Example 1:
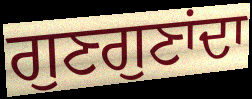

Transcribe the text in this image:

ਗੁਣਗੁਣਾਂਦਾ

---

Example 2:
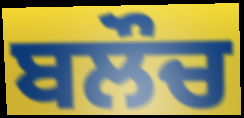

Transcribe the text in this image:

ਬਲੌਚ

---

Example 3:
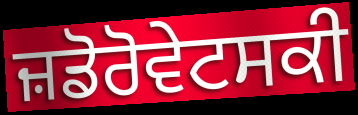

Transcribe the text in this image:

ਜ਼ਡੋਰੋਵੇਟਸਕੀ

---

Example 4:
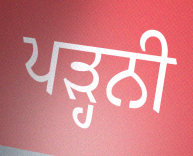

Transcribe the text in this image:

ਪੜ੍ਹਨੀ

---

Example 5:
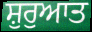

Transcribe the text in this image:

ਸ਼ੁਰੁਆਤ